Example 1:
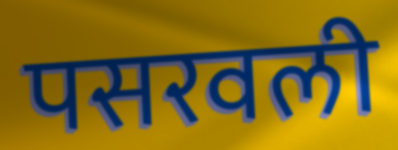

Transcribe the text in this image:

पसरवली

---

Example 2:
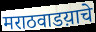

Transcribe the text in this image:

मराठवाडय़ाचे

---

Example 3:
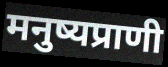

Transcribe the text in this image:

मनुष्यप्राणी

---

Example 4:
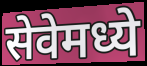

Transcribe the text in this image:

सेवेमध्ये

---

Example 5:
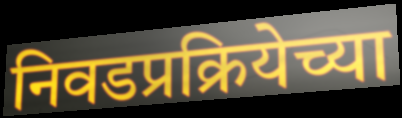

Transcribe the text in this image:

निवडप्रक्रियेच्या